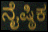
ನೈಷ್ಠಿಕ